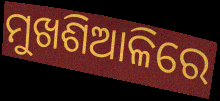
ମୁଖଶିଆଳିରେ